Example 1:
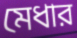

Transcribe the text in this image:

মেধার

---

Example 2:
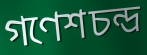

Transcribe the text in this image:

গণেশচন্দ্র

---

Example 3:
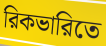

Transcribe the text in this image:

রিকভারিতে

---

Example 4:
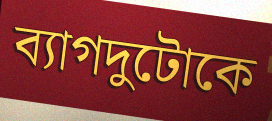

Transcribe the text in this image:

ব্যাগদুটোকে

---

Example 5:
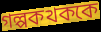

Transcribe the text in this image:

গল্পকথককে